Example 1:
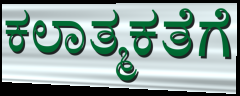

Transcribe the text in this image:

ಕಲಾತ್ಮಕತೆಗೆ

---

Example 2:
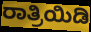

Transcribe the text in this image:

ರಾತ್ರಿಯಿಡಿ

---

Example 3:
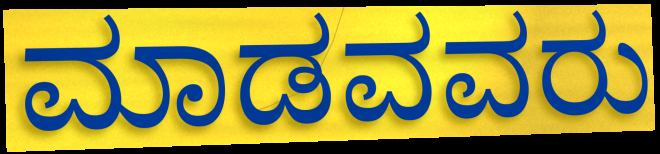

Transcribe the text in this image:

ಮಾಡವವರು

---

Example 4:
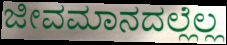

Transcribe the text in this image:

ಜೀವಮಾನದಲ್ಲೆಲ್ಲ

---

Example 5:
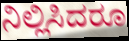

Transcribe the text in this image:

ನಿಲ್ಲಿಸಿದರೂ